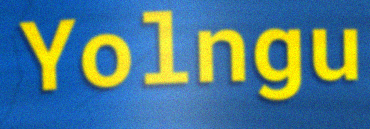
Yolngu